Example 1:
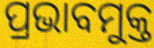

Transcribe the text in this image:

ପ୍ରଭାବମୁକ୍ତ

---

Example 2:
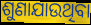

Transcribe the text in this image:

ଶୁଣାଯାଉଥିବା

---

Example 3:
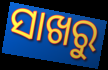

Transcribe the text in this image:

ସାଖରୁ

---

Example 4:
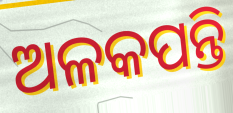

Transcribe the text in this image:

ଅଳକପନ୍ତି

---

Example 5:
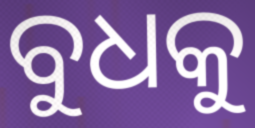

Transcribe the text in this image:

ବୁଧକୁ